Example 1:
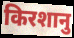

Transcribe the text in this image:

किरशानु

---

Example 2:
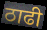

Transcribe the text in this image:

ठाढी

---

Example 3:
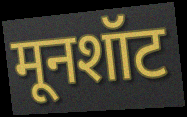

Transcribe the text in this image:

मूनशॉट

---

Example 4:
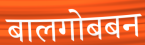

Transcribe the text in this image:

बालगोबबन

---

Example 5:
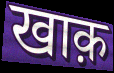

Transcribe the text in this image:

खाक़